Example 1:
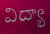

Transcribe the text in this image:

విద్యా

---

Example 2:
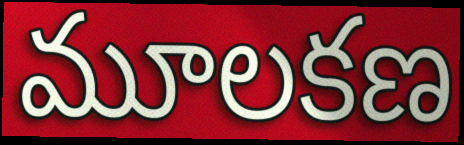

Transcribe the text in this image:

మూలకణ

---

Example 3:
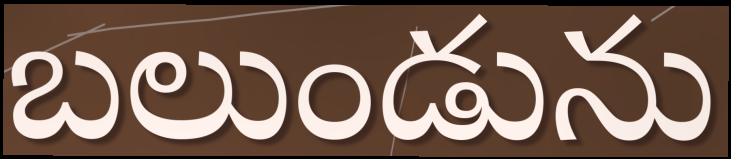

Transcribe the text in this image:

బలుండును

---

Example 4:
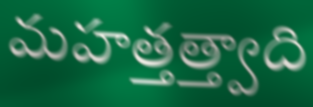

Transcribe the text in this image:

మహత్తత్త్వాది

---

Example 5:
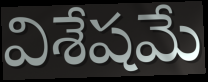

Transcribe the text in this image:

విశేషమే